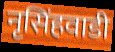
नृसिंहवाडी